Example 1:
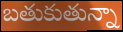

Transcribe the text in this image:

బతుకుతున్నా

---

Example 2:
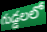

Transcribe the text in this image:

గుడ్డలలో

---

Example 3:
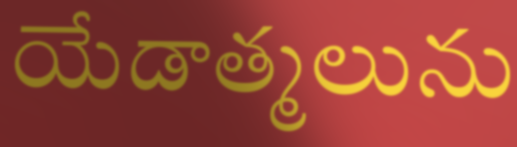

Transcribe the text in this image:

యేడాత్మలును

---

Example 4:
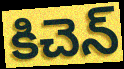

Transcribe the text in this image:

కిచెన్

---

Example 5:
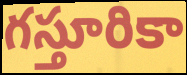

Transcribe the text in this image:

గస్తూరికా